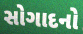
સોગાદનો